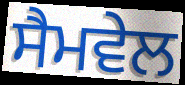
ਸੈਮਵੇਲ